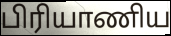
பிரியாணிய